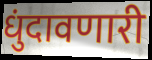
धुंदावणारी